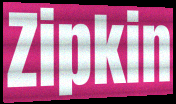
Zipkin